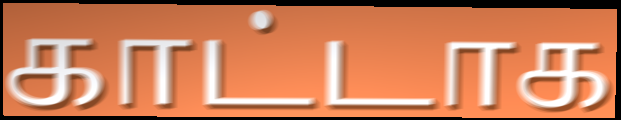
காட்டாக